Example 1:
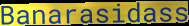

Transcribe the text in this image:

Banarasidass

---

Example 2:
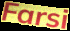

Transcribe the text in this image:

Farsi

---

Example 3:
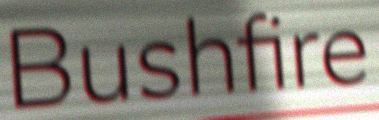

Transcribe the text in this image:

Bushfire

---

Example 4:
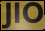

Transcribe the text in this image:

JIO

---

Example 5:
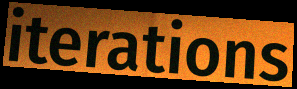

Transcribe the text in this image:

iterations